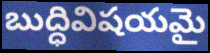
బుద్ధివిషయమై